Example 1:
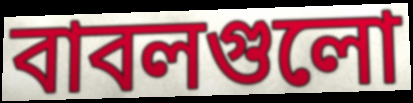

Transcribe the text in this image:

বাবলগুলো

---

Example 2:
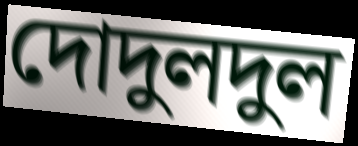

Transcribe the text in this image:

দোদুলদুল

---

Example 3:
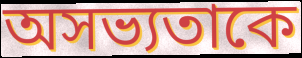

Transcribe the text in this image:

অসভ্যতাকে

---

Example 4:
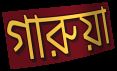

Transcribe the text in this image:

গারুয়া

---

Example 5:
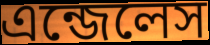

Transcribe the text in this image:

এন্জেলেস